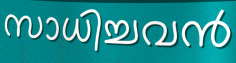
സാധിച്ചവൻ